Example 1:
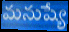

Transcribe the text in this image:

మనుష్యే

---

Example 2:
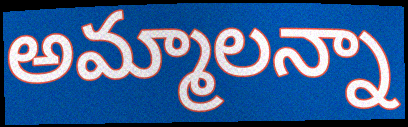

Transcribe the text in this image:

అమ్మాలన్నా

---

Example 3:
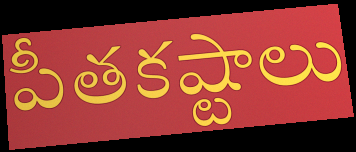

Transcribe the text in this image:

పీతకష్టాలు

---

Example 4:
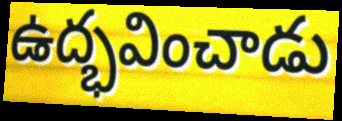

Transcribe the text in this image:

ఉద్భవించాడు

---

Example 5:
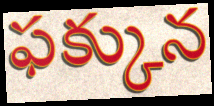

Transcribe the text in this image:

ఫక్కున